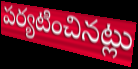
పర్యటించినట్లు